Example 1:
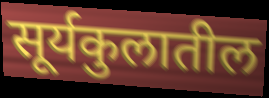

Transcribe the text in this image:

सूर्यकुलातील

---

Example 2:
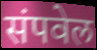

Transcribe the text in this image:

संपवेल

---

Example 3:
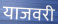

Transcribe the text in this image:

याजवरी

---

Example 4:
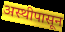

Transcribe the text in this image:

अस्थीपासून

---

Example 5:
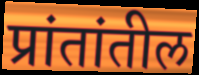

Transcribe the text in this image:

प्रांतांतील